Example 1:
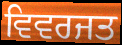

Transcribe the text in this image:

ਵਿਵਰਜਤ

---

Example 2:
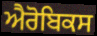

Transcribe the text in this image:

ਐਰੋਬਿਕਸ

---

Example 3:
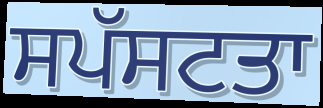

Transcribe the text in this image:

ਸਪੱਸਟਤਾ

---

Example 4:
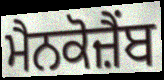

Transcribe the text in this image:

ਮੈਨਕੋਜ਼ੈਂਬ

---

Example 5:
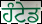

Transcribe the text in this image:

ਹੰਟੇਡ